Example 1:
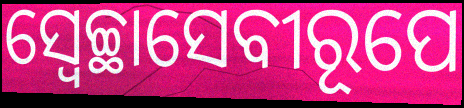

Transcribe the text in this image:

ସ୍ଵେଚ୍ଛାସେବୀରୂପେ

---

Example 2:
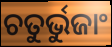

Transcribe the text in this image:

ଚତୁର୍ଭୁଜାଂ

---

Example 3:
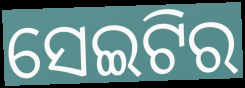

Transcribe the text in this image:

ସେଇଟିର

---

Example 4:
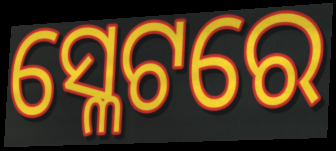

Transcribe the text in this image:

ସ୍ଳେଟରେ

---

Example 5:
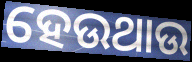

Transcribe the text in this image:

ହେଉଥାଉ